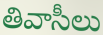
తివాసీలు